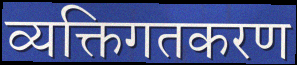
व्यक्तिगतकरण